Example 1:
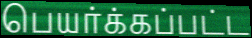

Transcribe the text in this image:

பெயர்க்கப்பட்ட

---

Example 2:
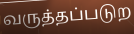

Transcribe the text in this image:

வருத்தப்படுற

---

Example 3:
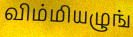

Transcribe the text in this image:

விம்மியழுங்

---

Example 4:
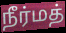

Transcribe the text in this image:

நீர்மத்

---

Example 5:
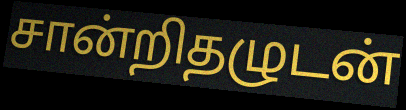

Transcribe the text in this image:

சான்றிதழுடன்